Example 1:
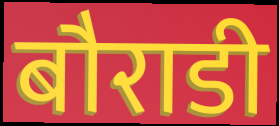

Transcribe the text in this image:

बौराडी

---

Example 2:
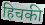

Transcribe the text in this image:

हिचकी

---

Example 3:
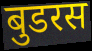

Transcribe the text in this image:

बुडरस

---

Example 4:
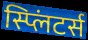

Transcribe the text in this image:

स्प्लिंटर्स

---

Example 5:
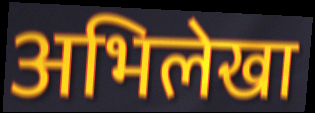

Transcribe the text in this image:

अभिलेखा